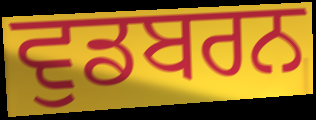
ਵੁਡਬਰਨ